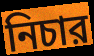
নিচার